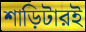
শাড়িটারই